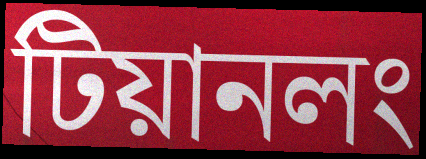
টিয়ানলং